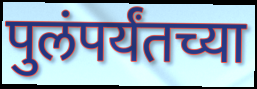
पुलंपर्यंतच्या